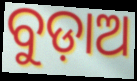
ବୁଡ଼ାଅ